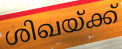
ശിഖയ്ക്ക്